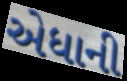
એધાની